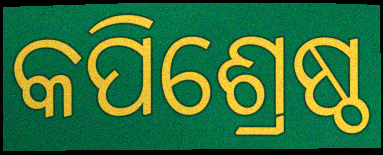
କପିଶ୍ରେଷ୍ଠ